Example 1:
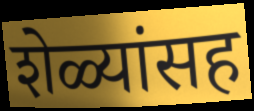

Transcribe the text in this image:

शेळ्यांसह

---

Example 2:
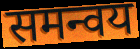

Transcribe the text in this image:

समन्वय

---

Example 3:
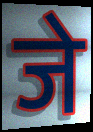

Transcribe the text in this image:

जे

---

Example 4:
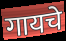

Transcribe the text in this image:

गायचे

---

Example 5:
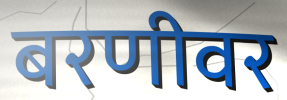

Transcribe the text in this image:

बरणीवर